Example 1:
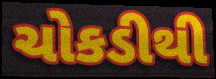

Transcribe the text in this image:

ચોકડીથી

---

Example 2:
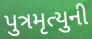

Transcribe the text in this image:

પુત્રમૃત્યુની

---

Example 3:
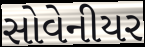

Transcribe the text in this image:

સોવેનીયર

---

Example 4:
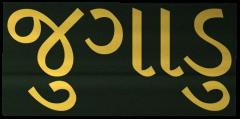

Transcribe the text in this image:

જુગાડુ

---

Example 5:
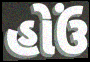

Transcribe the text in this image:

હોઉં